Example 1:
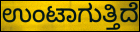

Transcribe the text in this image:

ಉಂಟಾಗುತ್ತಿದೆ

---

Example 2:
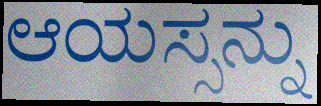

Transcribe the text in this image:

ಆಯಸ್ಸನ್ನು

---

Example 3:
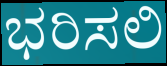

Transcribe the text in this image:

ಭರಿಸಲಿ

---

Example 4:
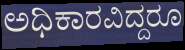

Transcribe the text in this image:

ಅಧಿಕಾರವಿದ್ದರೂ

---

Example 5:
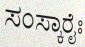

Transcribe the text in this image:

ಸಂಸ್ಕಾರೈಃ